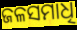
ଜଳସମାଧି